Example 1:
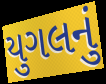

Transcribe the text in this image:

યુગલનું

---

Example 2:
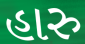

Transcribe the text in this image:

હારુ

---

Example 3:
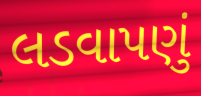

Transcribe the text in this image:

લડવાપણું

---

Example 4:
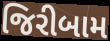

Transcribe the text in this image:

જિરીબામ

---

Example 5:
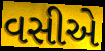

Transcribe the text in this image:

વસીએ